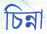
চিন্না